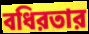
বধিরতার